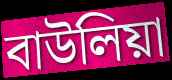
বাউলিয়া